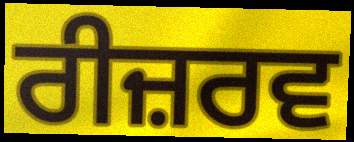
ਰੀਜ਼ਰਵ